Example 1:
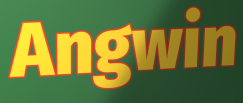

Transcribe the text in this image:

Angwin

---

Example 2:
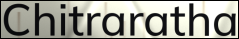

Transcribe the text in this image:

Chitraratha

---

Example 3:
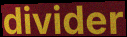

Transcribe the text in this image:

divider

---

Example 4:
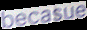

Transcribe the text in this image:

becasue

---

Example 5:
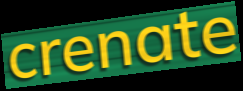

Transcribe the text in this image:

crenate